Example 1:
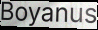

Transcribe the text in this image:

Boyanus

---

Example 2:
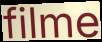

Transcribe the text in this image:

filme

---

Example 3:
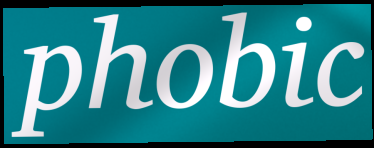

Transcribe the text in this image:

phobic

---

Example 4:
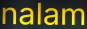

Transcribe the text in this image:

nalam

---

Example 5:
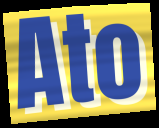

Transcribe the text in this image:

Ato